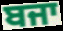
ਬਜਾ